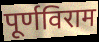
पूर्णविराम